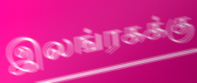
இலங்ரகக்கு